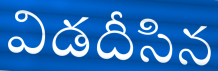
విడదీసిన